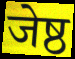
जेष्ठ